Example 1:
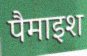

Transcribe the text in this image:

पैमाइश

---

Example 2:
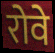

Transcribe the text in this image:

रोवे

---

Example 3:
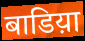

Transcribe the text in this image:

बाडिय़ा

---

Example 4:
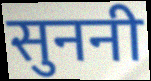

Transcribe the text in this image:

सुननी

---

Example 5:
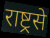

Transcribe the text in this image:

राष्ट्रसे